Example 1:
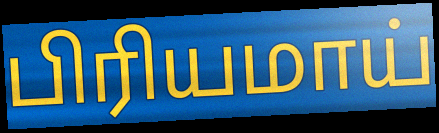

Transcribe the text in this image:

பிரியமாய்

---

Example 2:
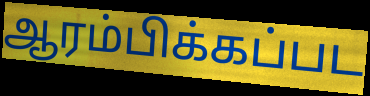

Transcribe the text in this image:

ஆரம்பிக்கப்பட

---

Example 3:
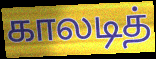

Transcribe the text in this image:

காலடித்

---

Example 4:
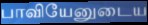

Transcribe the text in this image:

பாவியேனுடைய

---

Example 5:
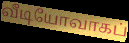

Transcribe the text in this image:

வீடியோவாகப்